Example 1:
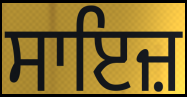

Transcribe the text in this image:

ਸਾਇਜ਼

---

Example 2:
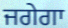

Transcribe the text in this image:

ਜਗੇਗਾ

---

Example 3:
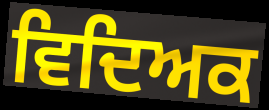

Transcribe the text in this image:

ਵਿਦਿਅਕ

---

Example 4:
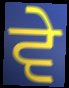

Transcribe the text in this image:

ਵੇ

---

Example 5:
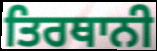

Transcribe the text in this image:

ਤਿਰਥਾਨੀ